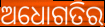
ଅଧୋଗତିର